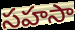
సహసా